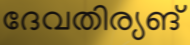
ദേവതിര്യങ്